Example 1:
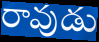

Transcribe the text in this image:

రావుడు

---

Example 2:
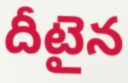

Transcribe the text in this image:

దీటైన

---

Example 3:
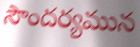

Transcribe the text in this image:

సౌందర్యమున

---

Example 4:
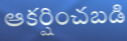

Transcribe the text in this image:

ఆకర్షించబడి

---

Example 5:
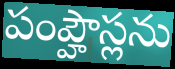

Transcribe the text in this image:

పంప్హౌస్లను